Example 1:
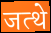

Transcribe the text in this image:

जत्थे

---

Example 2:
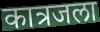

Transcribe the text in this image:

कात्रजला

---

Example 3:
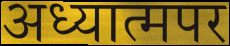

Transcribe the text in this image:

अध्यात्मपर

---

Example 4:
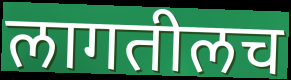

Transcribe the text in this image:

लागतीलच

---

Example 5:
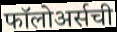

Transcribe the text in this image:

फॉलोअर्सची